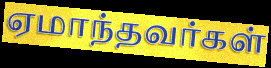
ஏமாந்தவர்கள்